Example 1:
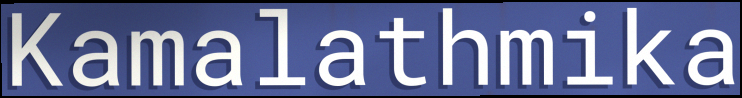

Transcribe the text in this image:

Kamalathmika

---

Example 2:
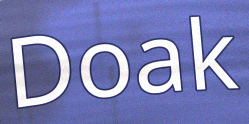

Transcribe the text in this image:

Doak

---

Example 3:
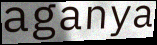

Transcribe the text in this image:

aganya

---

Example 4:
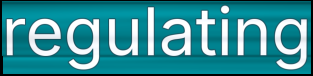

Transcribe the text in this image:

regulating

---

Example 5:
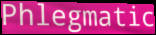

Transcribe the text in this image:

Phlegmatic